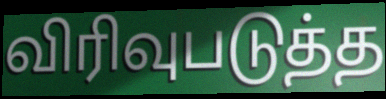
விரிவுபடுத்த